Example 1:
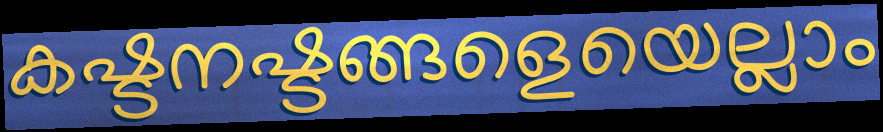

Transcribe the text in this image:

കഷ്ടനഷ്ടങ്ങളെയെല്ലാം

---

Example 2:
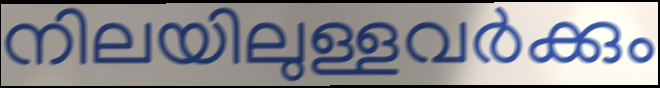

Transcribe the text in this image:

നിലയിലുള്ളവർക്കും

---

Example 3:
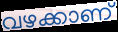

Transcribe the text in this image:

വഴക്കാണ്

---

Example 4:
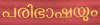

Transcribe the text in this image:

പരിഭാഷയും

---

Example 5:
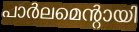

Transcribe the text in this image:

പാർലമെന്റായി